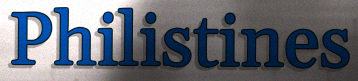
Philistines